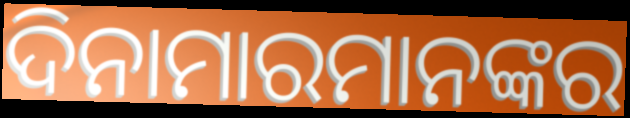
ଦିନାମାରମାନଙ୍କର